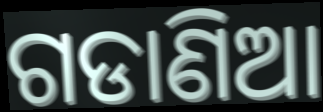
ଗଡାଣିଆ